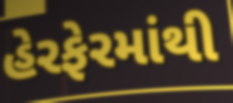
હેરફેરમાંથી